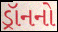
ડ્રૉનનો